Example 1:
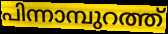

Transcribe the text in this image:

പിന്നാമ്പുറത്ത്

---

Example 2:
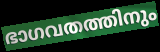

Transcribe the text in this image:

ഭാഗവതത്തിനും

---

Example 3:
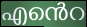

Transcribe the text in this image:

എൻെറ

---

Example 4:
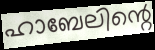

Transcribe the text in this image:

ഹാബേലിന്റെ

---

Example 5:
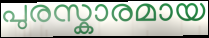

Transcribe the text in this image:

പുരസ്കാരമായ